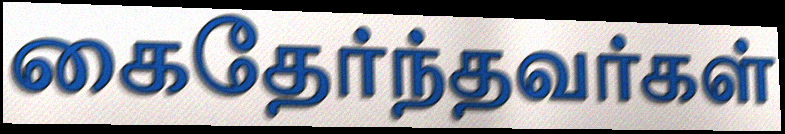
கைதேர்ந்தவர்கள்